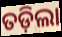
ତଡ଼ିଲା